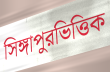
সিঙ্গাপুরভিত্তিক